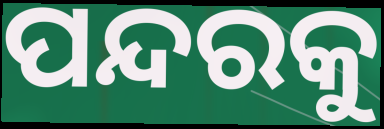
ପନ୍ଦରକୁ